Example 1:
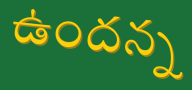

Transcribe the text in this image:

ఉందన్న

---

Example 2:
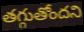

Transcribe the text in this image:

తగ్గుతోందని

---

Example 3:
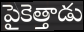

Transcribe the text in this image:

పైకెత్తాడు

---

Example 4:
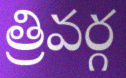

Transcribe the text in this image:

త్రివర్గ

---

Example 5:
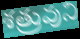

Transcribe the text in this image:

శత్రువుని